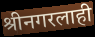
श्रीनगरलाही